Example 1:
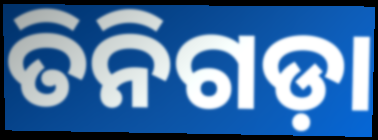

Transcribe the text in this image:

ତିନିଗଡ଼ା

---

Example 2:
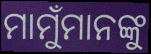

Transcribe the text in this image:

ମାମୁଁମାନଙ୍କୁ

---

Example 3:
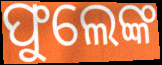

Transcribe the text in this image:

ଫୁଲେଙ୍କ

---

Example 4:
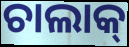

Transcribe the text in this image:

ଚାଲାକ୍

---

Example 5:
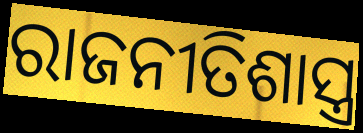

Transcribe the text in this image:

ରାଜନୀତିଶାସ୍ତ୍ର